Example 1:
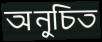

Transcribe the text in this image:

অনুচিত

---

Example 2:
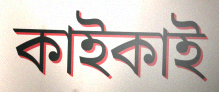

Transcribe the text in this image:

কাইকাই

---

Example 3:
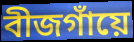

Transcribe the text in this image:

বীজগাঁয়ে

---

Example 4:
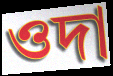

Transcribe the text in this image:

ওদা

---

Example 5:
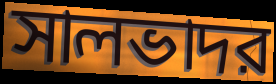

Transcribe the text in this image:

সালভাদর